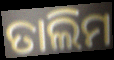
ତାଲିମ